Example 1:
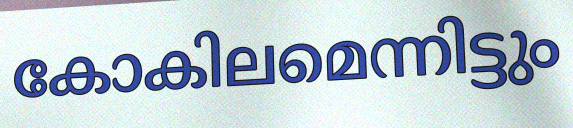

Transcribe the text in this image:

കോകിലമെന്നിട്ടും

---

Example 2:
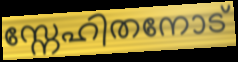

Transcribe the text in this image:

സ്നേഹിതനോട്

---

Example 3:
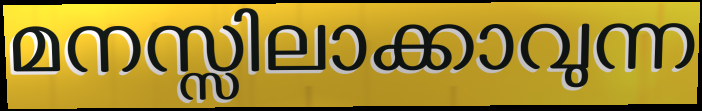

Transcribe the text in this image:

മനസ്സിലാക്കാവുന്ന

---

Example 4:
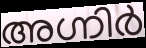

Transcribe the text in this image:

അഗ്നിർ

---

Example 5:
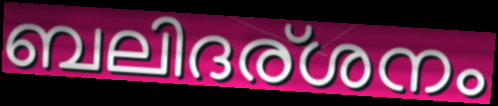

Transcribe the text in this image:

ബലിദര്ശനം